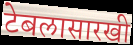
टेबलासारखी